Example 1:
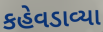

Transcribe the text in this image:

કહેવડાવ્યા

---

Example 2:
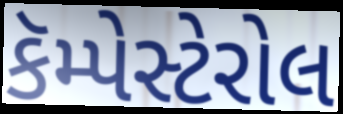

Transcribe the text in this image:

કૅમ્પેસ્ટેરોલ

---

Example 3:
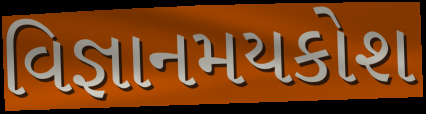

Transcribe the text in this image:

વિજ્ઞાનમયકોશ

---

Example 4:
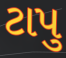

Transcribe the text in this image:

ટાપુ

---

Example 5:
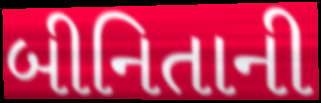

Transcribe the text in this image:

બીનિતાની